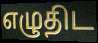
எழுதிட